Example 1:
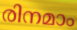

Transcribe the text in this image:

രിനമാം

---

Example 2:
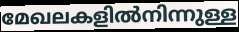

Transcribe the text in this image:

മേഖലകളിൽനിന്നുള്ള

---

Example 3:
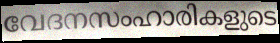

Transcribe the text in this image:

വേദനസംഹാരികളുടെ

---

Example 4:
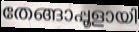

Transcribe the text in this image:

തേങ്ങാപ്പൂളായി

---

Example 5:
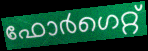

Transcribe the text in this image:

ഫോർഗെറ്റ്